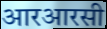
आरआरसी